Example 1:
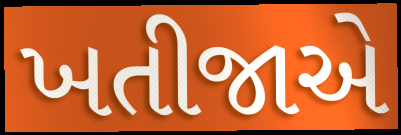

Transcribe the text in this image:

ખતીજાએ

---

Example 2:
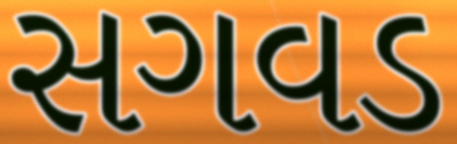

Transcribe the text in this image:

સગવડ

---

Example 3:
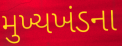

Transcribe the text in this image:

મુખ્યખંડના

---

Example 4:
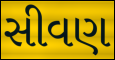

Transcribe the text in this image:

સીવણ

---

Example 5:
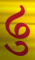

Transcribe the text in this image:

ઢુ